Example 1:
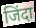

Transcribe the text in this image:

जिंदा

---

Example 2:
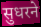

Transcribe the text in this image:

सुधरने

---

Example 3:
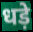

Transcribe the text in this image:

धड़े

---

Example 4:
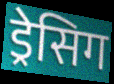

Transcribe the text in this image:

ड्रेसिग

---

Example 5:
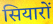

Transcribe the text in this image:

सियारों